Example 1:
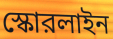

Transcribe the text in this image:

স্কোরলাইন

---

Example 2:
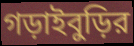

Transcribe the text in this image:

গড়াইবুড়ির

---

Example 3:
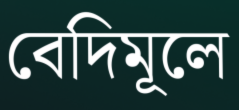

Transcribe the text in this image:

বেদিমূলে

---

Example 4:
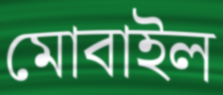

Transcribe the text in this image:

মোবাইল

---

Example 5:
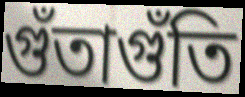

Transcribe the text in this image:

গুঁতাগুঁতি